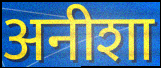
अनीशा